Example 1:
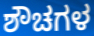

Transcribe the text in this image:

ಶೌಚಗಳ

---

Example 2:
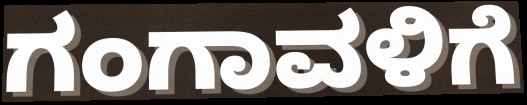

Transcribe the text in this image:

ಗಂಗಾವಳಿಗೆ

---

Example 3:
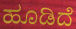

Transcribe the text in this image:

ಹೂಡಿದೆ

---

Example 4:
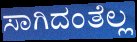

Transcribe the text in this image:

ಸಾಗಿದಂತೆಲ್ಲ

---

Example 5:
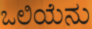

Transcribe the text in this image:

ಒಲಿಯೆನು